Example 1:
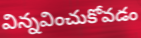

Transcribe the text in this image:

విన్నవించుకోవడం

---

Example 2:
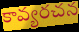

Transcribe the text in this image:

కావ్యరచన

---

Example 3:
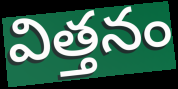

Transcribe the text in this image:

విత్తనం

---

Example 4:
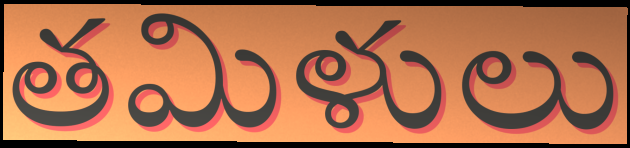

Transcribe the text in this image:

తమిళులు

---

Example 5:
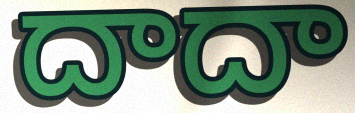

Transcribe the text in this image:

దాదా